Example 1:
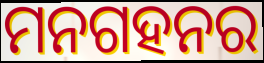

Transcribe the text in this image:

ମନଗହନର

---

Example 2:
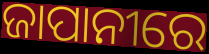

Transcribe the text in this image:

ଜାପାନୀରେ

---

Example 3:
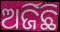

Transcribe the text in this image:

ଅର୍ଜିଛି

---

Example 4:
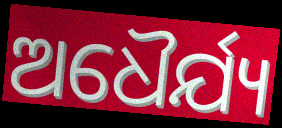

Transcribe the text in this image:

ଅଧୈର୍ଯ୍ୟ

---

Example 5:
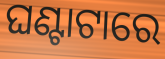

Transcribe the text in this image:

ଘଣ୍ଟାଟାରେ